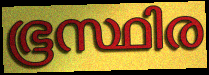
ഭൂസ്ഥിര